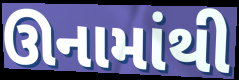
ઊનામાંથી